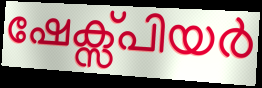
ഷേക്സ്പിയർ